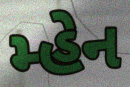
મ્હેન